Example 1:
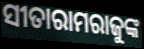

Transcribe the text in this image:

ସୀତାରାମରାଜୁଙ୍କ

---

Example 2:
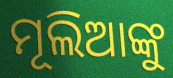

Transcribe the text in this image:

ମୂଲିଆଙ୍କୁ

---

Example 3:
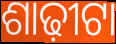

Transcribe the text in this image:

ଶାଢ଼ୀଟା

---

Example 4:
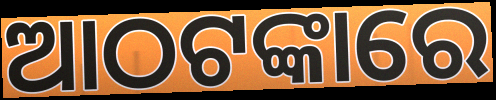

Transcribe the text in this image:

ଆଠଟଙ୍କାରେ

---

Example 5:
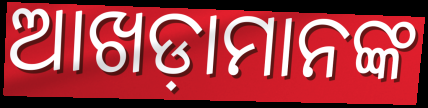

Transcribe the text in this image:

ଆଖଡ଼ାମାନଙ୍କ